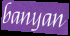
banyan